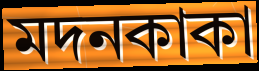
মদনকাকা